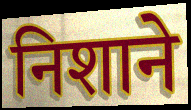
निशाने